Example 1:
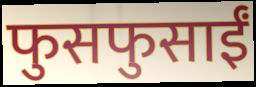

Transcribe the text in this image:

फुसफुसाईं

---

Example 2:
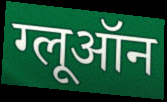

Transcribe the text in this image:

ग्लूऑन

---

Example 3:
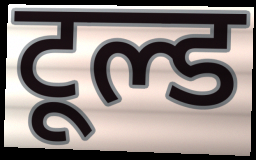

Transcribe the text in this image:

टूल्ड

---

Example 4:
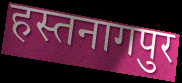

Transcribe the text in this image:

हस्तनागपुर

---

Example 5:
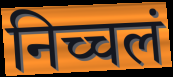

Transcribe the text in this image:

निच्चलं